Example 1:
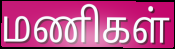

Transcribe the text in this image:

மணிகள்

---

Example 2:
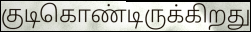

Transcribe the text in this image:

குடிகொண்டிருக்கிறது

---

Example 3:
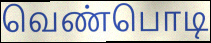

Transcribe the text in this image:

வெண்பொடி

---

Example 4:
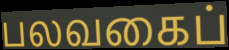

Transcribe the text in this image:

பலவகைப்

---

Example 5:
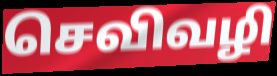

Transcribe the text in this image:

செவிவழி